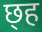
छ्ह